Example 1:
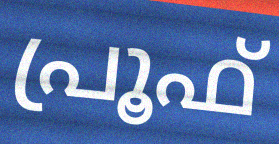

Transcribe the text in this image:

പ്രൂഫ്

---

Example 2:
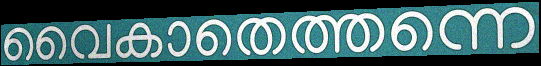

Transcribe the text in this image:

വൈകാതെത്തന്നെ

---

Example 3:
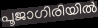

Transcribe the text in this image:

പൂജാഗിരിയിൽ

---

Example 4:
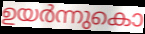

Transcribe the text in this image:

ഉയർന്നുകൊ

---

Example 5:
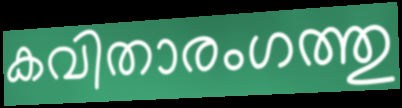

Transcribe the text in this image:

കവിതാരംഗത്തു